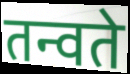
तन्वते